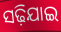
ସଢ଼ିଯାଇ